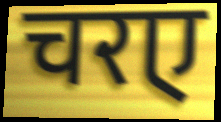
चरए